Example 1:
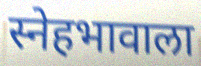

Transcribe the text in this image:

स्नेहभावाला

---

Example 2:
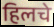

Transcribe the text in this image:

हिलचे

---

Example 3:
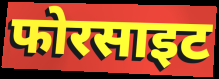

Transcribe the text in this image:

फोरसाइट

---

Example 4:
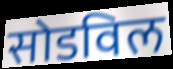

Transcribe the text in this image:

सोडविल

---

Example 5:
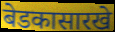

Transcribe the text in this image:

बेडकासारखे